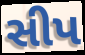
સીપ